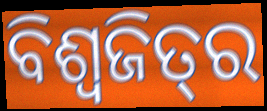
ବିଶ୍ୱଜିତ୍‌ର